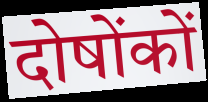
दोषोंकों